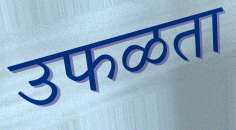
उफळता